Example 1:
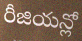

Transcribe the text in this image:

రీజియన్లో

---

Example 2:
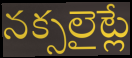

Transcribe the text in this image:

నక్సలైట్లే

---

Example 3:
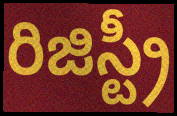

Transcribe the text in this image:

రిజిస్ట్రీ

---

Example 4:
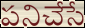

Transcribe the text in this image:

పనిచేసే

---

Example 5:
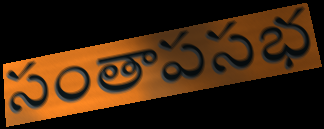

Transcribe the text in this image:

సంతాపసభ